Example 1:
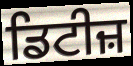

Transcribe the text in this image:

ਡਿਟੀਜ਼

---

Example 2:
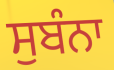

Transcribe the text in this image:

ਸੁਬੰਨਾ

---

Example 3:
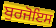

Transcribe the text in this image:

ਬੁਰਜੋਇਸ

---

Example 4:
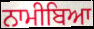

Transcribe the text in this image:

ਨਾਮੀਬਿਆ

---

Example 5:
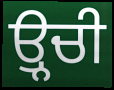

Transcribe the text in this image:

ਉ੍ਨਚੀ